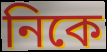
নিকে